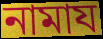
নামায